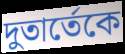
দুতার্তেকে